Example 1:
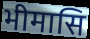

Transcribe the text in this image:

भीमासि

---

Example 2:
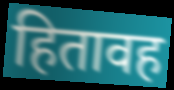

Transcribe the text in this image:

हितावह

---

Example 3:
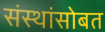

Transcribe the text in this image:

संस्थांसोबत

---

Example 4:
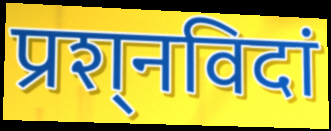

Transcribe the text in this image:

प्रश्नविदां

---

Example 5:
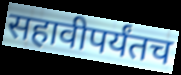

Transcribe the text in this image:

सहावीपर्यंतच